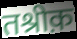
तश्रीक़